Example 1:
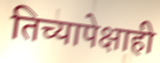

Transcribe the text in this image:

तिच्यापेक्षाही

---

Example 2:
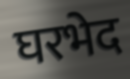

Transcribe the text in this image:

घरभेद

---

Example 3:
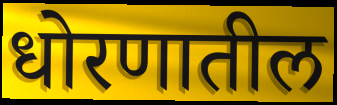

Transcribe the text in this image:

धोरणातील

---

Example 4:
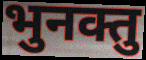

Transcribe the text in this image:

भुनक्तु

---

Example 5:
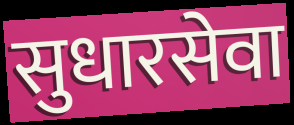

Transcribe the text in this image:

सुधारसेवा